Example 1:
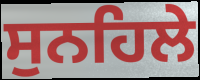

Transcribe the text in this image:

ਸੁਨਹਿਲੇ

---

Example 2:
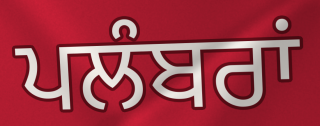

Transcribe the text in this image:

ਪਲੰਬਰਾਂ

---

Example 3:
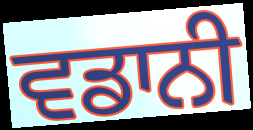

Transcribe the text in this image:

ਵਡਾਨੀ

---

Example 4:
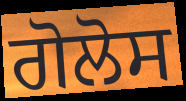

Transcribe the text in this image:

ਗੋਲੋਸ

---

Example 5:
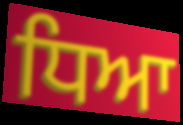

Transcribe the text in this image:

ਧਿਆ